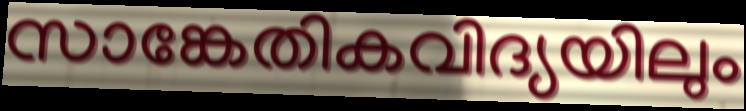
സാങ്കേതികവിദ്യയിലും